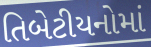
તિબેટીયનોમાં